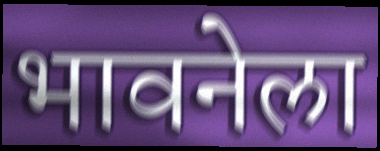
भावनेला